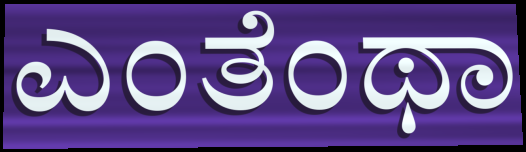
ಎಂತೆಂಥಾ